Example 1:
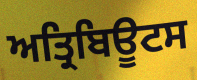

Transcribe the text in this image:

ਅਤ੍ਰਿਬਿਊਟਸ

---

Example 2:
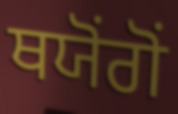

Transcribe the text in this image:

ਥਯੋਂਗੋਂ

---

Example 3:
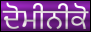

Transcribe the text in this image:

ਦੋਮੀਨੀਕੋ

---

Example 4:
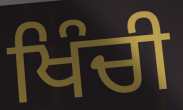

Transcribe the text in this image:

ਖਿੰਚੀ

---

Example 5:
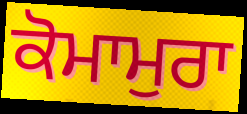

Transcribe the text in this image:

ਕੋਮਾਮੁਰਾ